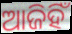
ଆଜିହିଁ